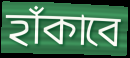
হাঁকাবে